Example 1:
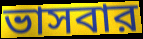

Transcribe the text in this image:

ভাসবার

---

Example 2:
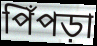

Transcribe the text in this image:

পিঁপড়া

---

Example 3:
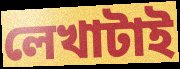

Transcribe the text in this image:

লেখাটাই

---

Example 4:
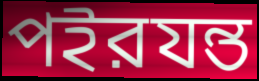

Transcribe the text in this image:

পইরযন্ত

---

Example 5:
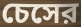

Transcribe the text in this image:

চেসের